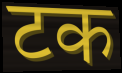
टक